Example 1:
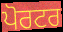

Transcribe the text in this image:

ਪੋਰਟਰ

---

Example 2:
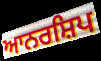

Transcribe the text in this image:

ਆਨਰਸ਼ਿਪ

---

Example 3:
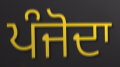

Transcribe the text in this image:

ਪੰਜੋਦਾ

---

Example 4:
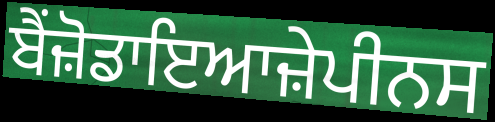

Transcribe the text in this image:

ਬੈਂਜ਼ੋਡਾਇਆਜ਼ੇਪੀਨਸ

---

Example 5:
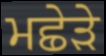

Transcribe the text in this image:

ਮਛੇੜੇ